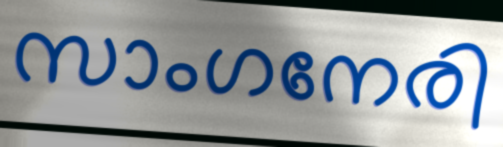
സാംഗനേരി